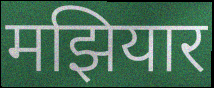
मझियार